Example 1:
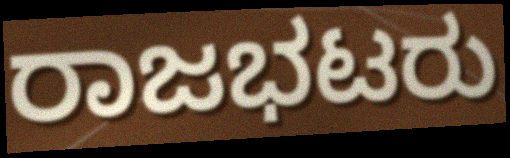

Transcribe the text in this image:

ರಾಜಭಟರು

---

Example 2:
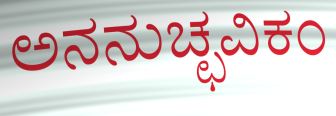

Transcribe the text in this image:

ಅನನುಚ್ಛವಿಕಂ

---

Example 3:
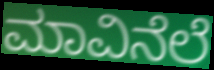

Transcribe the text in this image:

ಮಾವಿನೆಲೆ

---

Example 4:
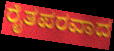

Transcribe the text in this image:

ರೈತಪರವಾದ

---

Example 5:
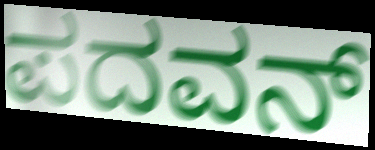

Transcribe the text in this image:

ಪದವನ್